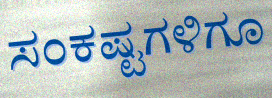
ಸಂಕಷ್ಟಗಳಿಗೂ